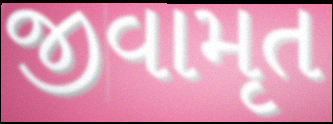
જીવામૃત